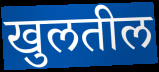
खुलतील